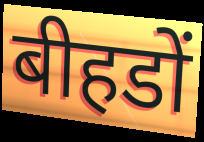
बीहडों